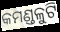
କମଣ୍ଡଳୁଟି